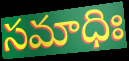
సమాధిః